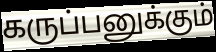
கருப்பனுக்கும்